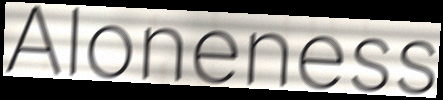
Aloneness